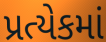
પ્રત્યેકમાં